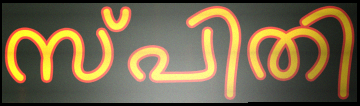
സ്പിതി